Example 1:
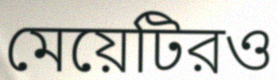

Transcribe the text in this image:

মেয়েটিরও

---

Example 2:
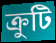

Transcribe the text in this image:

ক্রুটি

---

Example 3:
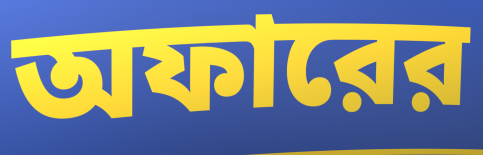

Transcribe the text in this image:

অফারের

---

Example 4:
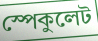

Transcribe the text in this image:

স্পেকুলেট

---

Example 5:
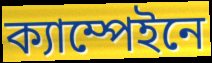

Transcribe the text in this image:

ক্যাম্পেইনে